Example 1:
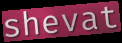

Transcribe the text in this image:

shevat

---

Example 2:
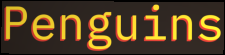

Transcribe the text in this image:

Penguins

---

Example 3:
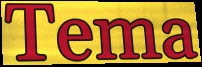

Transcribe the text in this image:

Tema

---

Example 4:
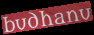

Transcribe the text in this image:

budhanu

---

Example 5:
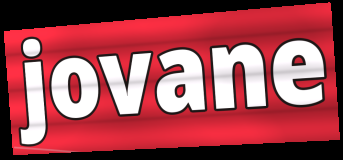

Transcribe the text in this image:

jovane